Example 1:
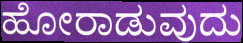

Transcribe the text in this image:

ಹೋರಾಡುವುದು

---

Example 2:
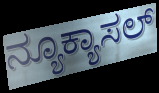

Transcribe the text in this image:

ನ್ಯೂಕ್ಯಾಸಲ್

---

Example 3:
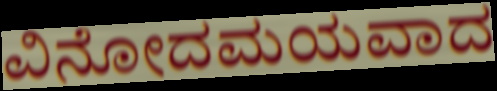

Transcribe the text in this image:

ವಿನೋದಮಯವಾದ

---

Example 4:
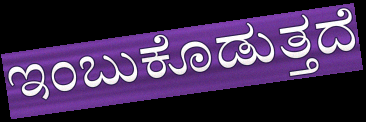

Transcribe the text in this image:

ಇಂಬುಕೊಡುತ್ತದೆ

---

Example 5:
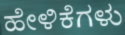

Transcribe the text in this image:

ಹೇಳಿಕೆಗಳು